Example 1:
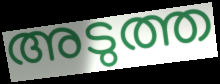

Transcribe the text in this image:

അടുത്ത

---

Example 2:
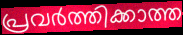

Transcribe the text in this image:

പ്രവർത്തിക്കാത്ത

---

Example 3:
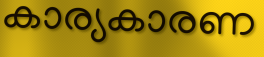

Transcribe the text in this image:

കാര്യകാരണ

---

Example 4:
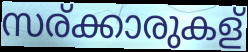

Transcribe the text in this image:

സര്ക്കാരുകള്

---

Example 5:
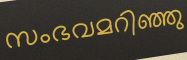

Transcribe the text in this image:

സംഭവമറിഞ്ഞു